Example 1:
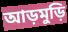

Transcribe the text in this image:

আড়মুড়ি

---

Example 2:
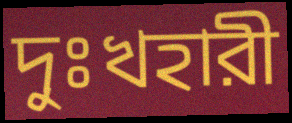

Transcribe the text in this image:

দুঃখহারী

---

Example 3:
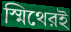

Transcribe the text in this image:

স্মিথেরই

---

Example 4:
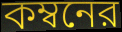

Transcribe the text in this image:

কম্বনের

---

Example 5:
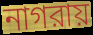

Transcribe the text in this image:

নাগরায়